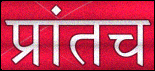
प्रांतच